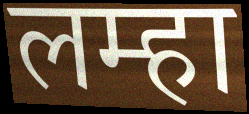
लम्हा